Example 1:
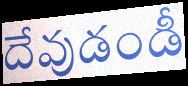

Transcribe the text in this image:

దేవుడండీ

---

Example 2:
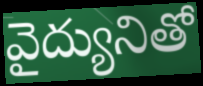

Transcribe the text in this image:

వైద్యునితో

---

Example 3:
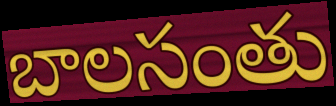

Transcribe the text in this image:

బాలసంతు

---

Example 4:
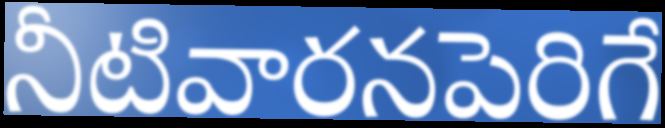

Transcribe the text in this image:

నీటివారనపెరిగే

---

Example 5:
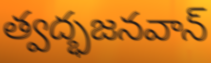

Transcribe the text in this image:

త్వద్భజనవాన్